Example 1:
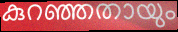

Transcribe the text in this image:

കുറഞ്ഞതായും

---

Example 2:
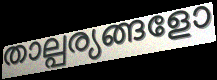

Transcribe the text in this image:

താല്പര്യങ്ങളോ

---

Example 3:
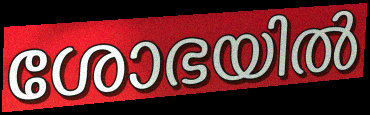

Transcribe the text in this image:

ശോഭയിൽ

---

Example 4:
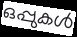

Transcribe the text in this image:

ഒപ്പുകൾ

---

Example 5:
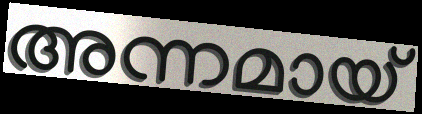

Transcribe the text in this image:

അന്നമായ്